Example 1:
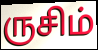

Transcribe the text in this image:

ருசிம்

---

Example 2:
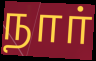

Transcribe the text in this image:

நார்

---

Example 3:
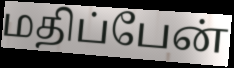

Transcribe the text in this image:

மதிப்பேன்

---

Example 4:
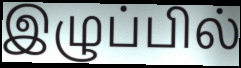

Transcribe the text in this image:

இழுப்பில்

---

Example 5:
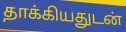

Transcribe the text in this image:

தாக்கியதுடன்